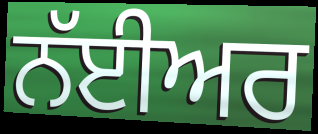
ਨੱਈਅਰ